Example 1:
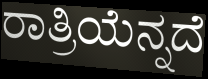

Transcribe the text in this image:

ರಾತ್ರಿಯೆನ್ನದೆ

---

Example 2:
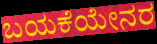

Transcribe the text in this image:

ಬಯಕೆಯೇನರ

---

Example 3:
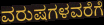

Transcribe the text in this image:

ವರುಷಗಳವರೆಗೆ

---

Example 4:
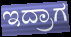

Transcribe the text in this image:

ಇದ್ರಾಗ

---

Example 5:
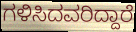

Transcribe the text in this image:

ಗಳಿಸಿದವರಿದ್ದಾರೆ